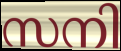
സനി